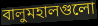
বালুমহালগুলো